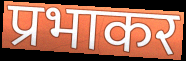
प्रभाकर